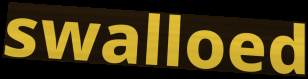
swalloed